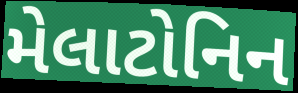
મેલાટોનિન